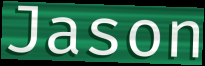
Jason